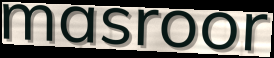
masroor